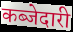
कब्जेदारी